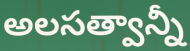
అలసత్వాన్నీ